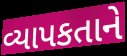
વ્યાપકતાને